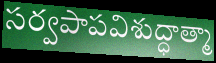
సర్వపాపవిశుద్ధాత్మా